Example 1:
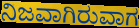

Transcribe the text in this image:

ನಿಜವಾಗಿರುವಾಗ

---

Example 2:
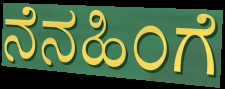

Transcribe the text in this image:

ನೆನಹಿಂಗೆ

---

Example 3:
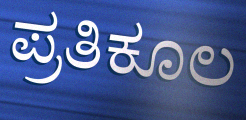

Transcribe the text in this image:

ಪ್ರತಿಕೂಲ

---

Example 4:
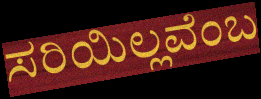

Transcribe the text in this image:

ಸರಿಯಿಲ್ಲವೆಂಬ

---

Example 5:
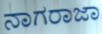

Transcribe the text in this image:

ನಾಗರಾಜಾ